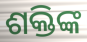
ଶକ୍ତିଙ୍କ